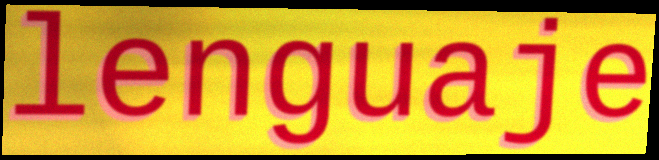
lenguaje